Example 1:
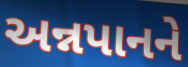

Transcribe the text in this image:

અન્નપાનને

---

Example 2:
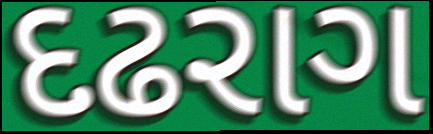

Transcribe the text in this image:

દઢરાગ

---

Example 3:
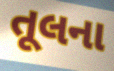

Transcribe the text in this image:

તૂલના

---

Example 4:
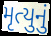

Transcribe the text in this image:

મૃત્યુનું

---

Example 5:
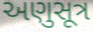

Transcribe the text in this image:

અણુસૂત્ર